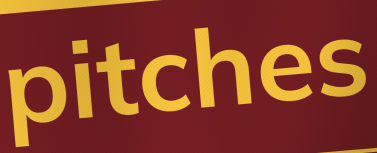
pitches